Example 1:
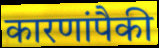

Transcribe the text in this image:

कारणांपैकी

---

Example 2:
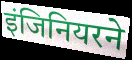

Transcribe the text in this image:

इंजिनियरने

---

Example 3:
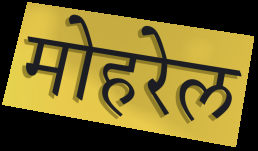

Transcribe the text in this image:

मोहरेल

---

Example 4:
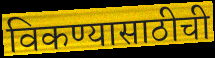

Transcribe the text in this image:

विकण्यासाठीची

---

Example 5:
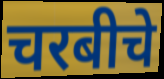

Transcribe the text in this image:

चरबीचे